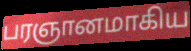
பரஞானமாகிய